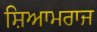
ਸ਼ਿਆਮਰਾਜ